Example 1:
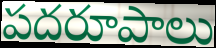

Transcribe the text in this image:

పదరూపాలు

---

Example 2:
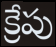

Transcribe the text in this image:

క్రేపు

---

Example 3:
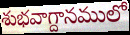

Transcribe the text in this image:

శుభవాగ్దానములో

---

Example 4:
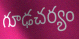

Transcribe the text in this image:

గూఢచర్యం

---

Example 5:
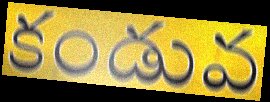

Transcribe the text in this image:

కండువ